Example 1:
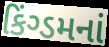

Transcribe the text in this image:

કિંગ્ડમનાં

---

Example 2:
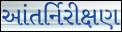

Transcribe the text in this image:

આંતર્નિરીક્ષણ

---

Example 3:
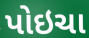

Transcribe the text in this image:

પોઇચા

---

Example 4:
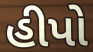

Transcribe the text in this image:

હીપો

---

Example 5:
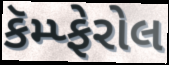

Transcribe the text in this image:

કૅમ્પ્ફેરોલ